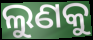
ଲୁଣକୁ